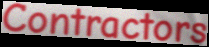
Contractors